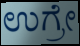
ಉಗ್ರೇ